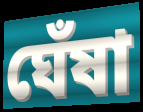
ঘেঁষা